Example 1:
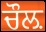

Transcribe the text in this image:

ਚੌਲ਼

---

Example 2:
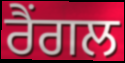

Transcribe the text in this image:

ਰੈਂਗਲ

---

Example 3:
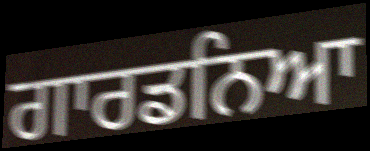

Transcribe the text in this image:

ਗਾਰਡਨਿਆ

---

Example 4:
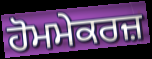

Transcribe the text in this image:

ਹੋਮਮੇਕਰਜ਼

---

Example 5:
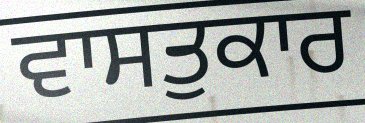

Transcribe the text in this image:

ਵਾਸਤੁਕਾਰ